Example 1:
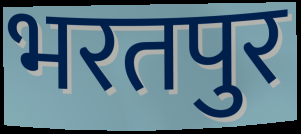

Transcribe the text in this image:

भरतपुर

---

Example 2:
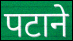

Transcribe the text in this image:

पटाने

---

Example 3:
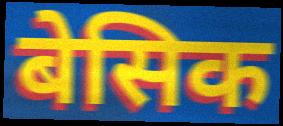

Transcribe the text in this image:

बेसिक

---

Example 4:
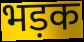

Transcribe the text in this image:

भड़क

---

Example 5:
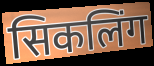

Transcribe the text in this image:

सिकलिंग